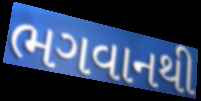
ભગવાનથી